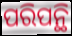
ପରିପନ୍ଥି